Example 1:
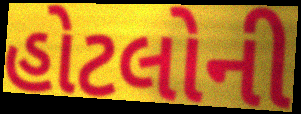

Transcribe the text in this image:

હોટલોની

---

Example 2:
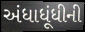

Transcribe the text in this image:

અંધાધૂંધીની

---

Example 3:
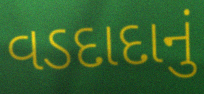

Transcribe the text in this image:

વડદાદાનું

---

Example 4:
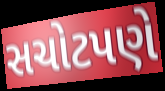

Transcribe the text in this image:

સચોટપણે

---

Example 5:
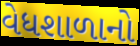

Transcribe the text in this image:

વેધશાળાનો